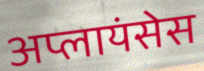
अप्लायंसेस